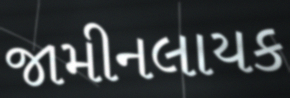
જામીનલાયક